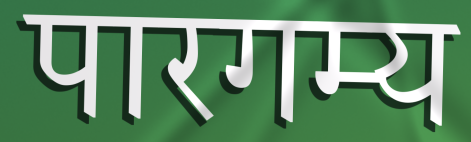
पारगम्य